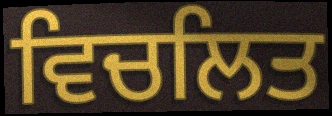
ਵਿਚਲਿਤ